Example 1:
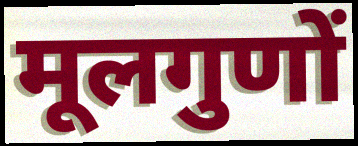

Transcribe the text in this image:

मूलगुणों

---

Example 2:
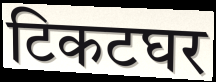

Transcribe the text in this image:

टिकटघर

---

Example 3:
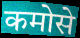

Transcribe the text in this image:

कमोसे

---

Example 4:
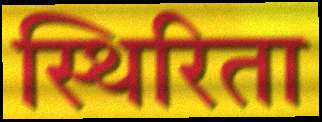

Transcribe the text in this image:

स्थिरिता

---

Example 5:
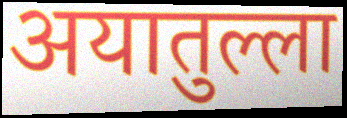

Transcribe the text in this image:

अयातुल्‍ला